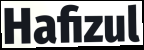
Hafizul